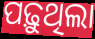
ପଢ଼ୁଥିଲା